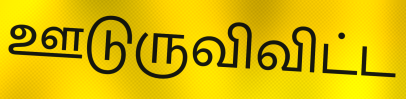
ஊடுருவிவிட்ட